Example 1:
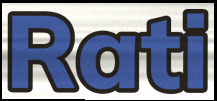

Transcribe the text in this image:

Rati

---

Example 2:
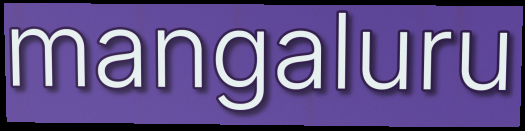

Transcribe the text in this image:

mangaluru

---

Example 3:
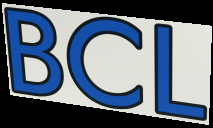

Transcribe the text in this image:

BCL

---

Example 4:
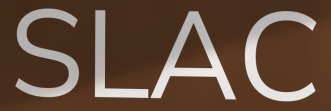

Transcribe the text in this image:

SLAC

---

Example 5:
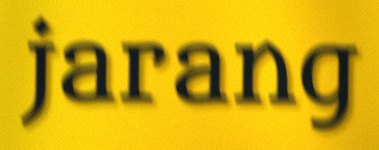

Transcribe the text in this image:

jarang